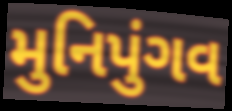
મુનિપુંગવ